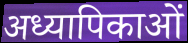
अध्यापिकाओं